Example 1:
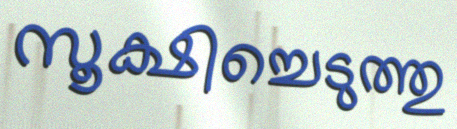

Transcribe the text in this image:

സൂക്ഷിച്ചെടുത്തു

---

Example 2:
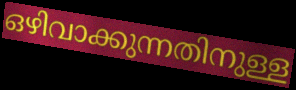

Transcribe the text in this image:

ഒഴിവാക്കുന്നതിനുള്ള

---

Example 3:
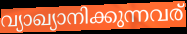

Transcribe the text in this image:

വ്യാഖ്യാനിക്കുന്നവര്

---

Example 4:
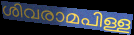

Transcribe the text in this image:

ശിവരാമപിള്ള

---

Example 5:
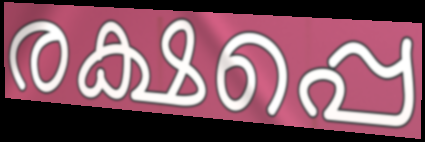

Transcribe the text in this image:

രക്ഷപ്പെ